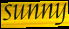
sunny